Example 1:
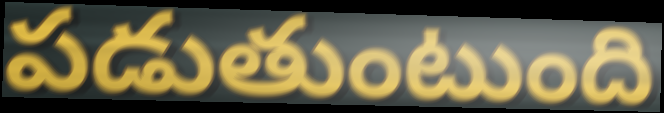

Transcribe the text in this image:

పడుతుంటుంది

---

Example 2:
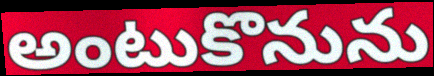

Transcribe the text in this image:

అంటుకొనును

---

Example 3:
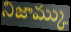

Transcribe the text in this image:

నిజామ్కు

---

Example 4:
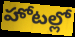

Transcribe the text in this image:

హోటల్లో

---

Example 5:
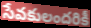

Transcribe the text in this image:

సేవకులందరికీ